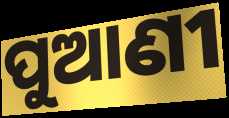
ପୁଆଣୀ